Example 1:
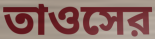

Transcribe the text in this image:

তাওসের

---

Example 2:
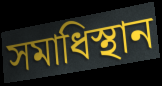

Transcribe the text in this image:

সমাধিস্থান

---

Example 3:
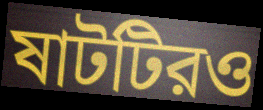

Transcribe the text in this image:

ষাটটিরও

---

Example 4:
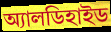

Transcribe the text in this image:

অ্যালডিহাইড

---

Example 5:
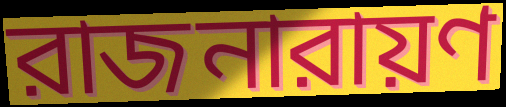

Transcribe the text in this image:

রাজনারায়ণ